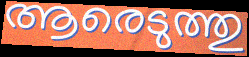
ആരെടുത്തു